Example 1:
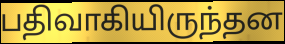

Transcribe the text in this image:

பதிவாகியிருந்தன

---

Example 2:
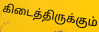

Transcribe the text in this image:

கிடைத்திருக்கும்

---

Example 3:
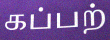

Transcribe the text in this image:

கப்பற்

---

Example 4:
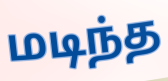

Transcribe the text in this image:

மடிந்த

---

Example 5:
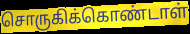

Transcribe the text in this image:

சொருகிக்கொண்டாள்